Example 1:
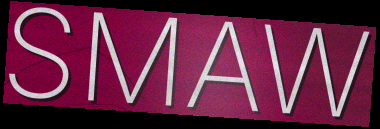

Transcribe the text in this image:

SMAW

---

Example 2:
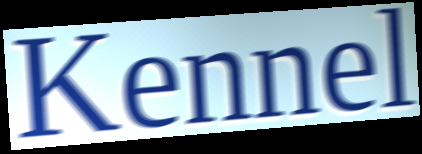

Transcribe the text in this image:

Kennel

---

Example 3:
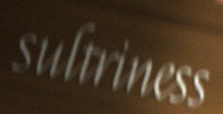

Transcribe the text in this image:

sultriness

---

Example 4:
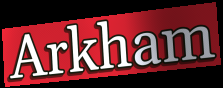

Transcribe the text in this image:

Arkham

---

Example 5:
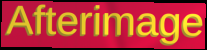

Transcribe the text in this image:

Afterimage